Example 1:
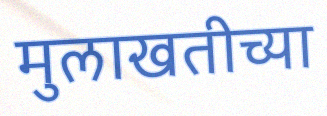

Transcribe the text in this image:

मुलाखतीच्या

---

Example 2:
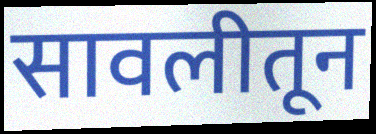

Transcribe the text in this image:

सावलीतून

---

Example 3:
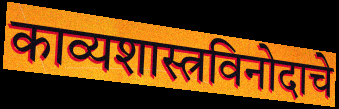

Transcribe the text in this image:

काव्यशास्त्रविनोदाचे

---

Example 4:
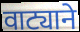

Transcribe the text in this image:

वाट्याने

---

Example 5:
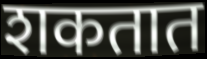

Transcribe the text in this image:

शकतात